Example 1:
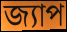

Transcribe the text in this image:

জ্যাপ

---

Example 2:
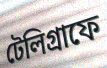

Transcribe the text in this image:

টেলিগ্রাফে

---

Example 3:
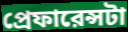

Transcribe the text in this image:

প্রেফারেন্সটা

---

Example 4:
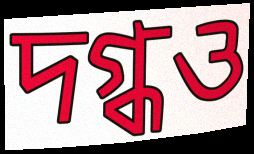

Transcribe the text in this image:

দগ্ধও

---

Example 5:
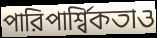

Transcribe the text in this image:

পারিপার্শ্বিকতাও